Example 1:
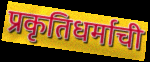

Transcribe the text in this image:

प्रकृतिधर्माची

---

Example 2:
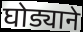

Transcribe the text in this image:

घोड्याने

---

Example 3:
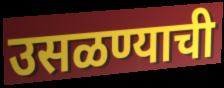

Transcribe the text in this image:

उसळण्याची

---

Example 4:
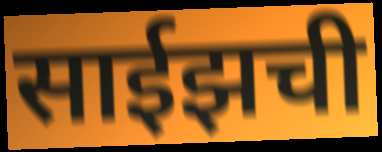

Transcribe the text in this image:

साईझची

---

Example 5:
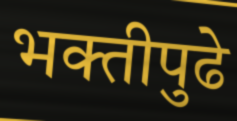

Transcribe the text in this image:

भक्तीपुढे